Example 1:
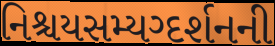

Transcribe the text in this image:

નિશ્ચયસમ્યગ્દર્શનની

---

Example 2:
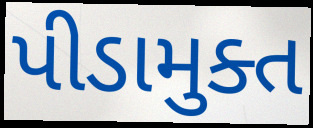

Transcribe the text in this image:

પીડામુક્ત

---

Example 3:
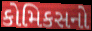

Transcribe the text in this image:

કોમિકસનો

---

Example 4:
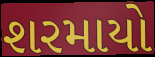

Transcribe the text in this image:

શરમાયો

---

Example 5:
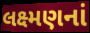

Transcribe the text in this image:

લક્ષ્મણનાં